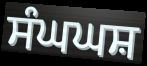
ਸੰਘਘਸ਼